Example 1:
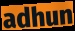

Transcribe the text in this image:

adhun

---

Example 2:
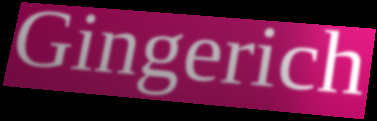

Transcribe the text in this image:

Gingerich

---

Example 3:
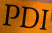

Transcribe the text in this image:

PDI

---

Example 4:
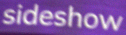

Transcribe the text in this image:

sideshow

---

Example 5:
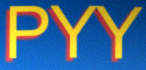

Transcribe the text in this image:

PYY